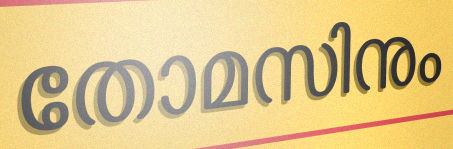
തോമസിനും